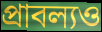
প্রাবল্যও